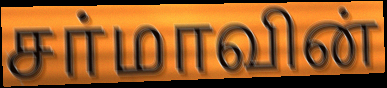
சர்மாவின்